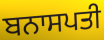
ਬਨਾਸਪਤੀ